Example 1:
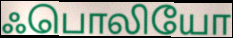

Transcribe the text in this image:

ஃபொலியோ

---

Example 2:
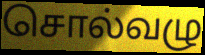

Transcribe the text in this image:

சொல்வழு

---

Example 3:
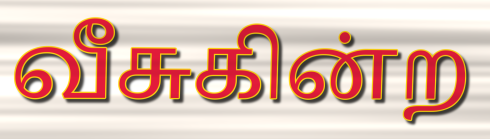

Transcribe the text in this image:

வீசுகின்ற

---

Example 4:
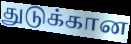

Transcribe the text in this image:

துடுக்கான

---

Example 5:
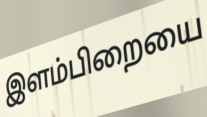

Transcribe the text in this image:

இளம்பிறையை